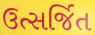
ઉત્સર્જિત